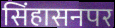
सिंहासनपर